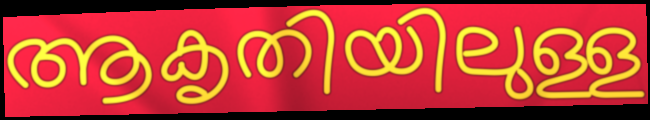
ആകൃതിയിലുള്ള